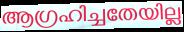
ആഗ്രഹിച്ചതേയില്ല